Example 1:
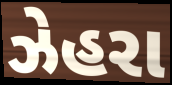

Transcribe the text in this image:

ઝેહરા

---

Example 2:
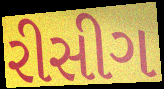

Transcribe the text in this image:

રીસીગ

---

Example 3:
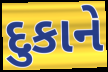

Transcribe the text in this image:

દુકાને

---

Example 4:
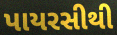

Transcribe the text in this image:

પાયરસીથી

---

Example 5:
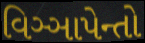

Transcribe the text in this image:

વિઞ્ઞાપેન્તો